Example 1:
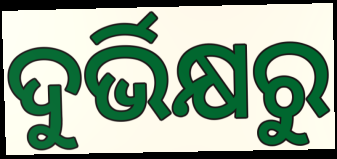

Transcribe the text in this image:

ଦୁର୍ଭିକ୍ଷରୁ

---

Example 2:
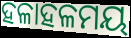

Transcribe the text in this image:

ହଳାହଳମୟ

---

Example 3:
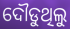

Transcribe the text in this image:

ଦୌଡୁଥିଲୁ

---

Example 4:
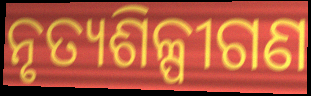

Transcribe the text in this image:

ନୃତ୍ୟଶିଳ୍ପୀଗଣ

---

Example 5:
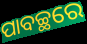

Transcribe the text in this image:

ପାବଚ୍ଛରେ